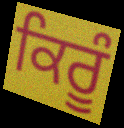
ਕਿਰੂੰ